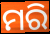
ମରି